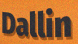
Dallin